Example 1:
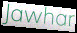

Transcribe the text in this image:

Jawhar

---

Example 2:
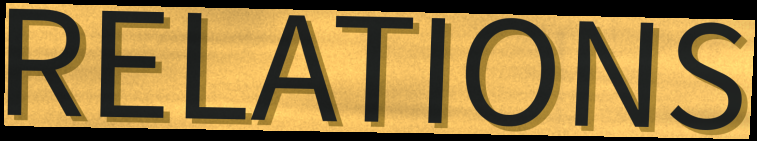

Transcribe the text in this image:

RELATIONS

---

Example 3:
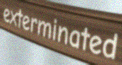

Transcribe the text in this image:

exterminated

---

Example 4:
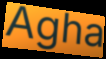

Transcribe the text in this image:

Agha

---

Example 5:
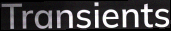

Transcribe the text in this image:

Transients